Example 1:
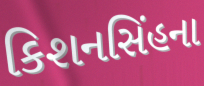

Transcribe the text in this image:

કિશનસિંહના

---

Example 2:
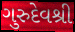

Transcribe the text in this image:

ગુરુદેવશ્રી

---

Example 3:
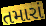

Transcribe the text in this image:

તમારાં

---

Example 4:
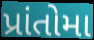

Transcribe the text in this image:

પ્રાંતોમા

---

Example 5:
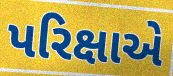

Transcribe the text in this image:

પરિક્ષાએ